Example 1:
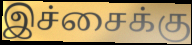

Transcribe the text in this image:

இச்சைக்கு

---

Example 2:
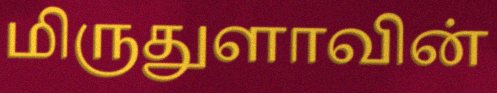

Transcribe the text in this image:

மிருதுளாவின்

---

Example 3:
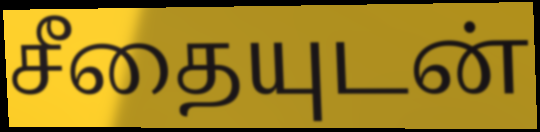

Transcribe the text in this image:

சீதையுடன்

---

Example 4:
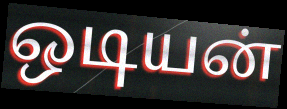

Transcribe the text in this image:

ஒடியன்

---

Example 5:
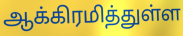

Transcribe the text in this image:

ஆக்கிரமித்துள்ள